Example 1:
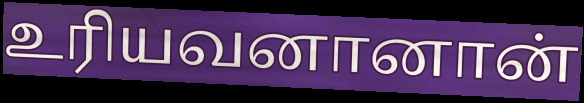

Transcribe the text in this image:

உரியவனானான்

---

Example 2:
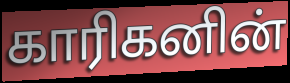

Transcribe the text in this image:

காரிகனின்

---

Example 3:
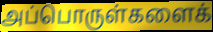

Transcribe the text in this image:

அப்பொருள்களைக்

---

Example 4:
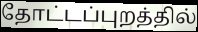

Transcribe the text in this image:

தோட்டப்புறத்தில்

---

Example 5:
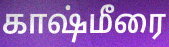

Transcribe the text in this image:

காஷ்மீரை